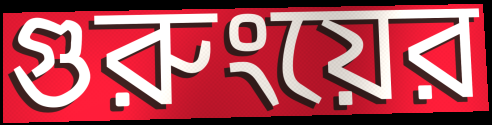
গুরুংয়ের